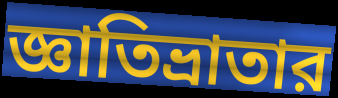
জ্ঞাতিভ্রাতার